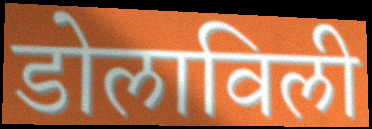
डोलाविली